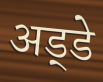
अड्‍डे